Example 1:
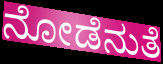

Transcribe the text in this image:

ನೋಡೆನುತೆ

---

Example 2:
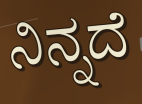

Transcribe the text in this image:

ನಿನ್ನದೆ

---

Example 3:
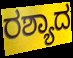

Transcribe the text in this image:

ರಶ್ಯಾದ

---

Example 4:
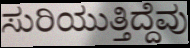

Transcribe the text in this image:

ಸುರಿಯುತ್ತಿದ್ದೆವು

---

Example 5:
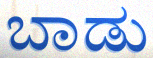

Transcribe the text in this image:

ಬಾಡು